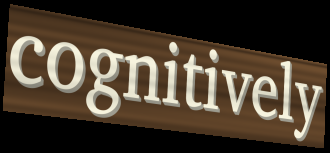
cognitively